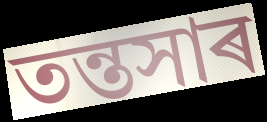
তন্তসাৰ